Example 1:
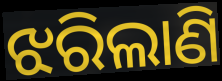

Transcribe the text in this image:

ଝରିଲାଣି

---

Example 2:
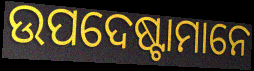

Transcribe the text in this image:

ଉପଦେଷ୍ଟାମାନେ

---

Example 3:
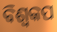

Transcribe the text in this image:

ବିଶ୍ବକପ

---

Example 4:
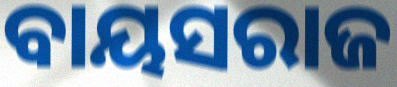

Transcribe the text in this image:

ବାୟସରାଜ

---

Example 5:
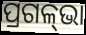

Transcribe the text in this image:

ପ୍ରଗଳ୍‌ଭା